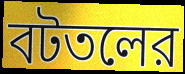
বটতলের